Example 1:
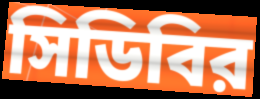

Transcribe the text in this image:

সিডিবির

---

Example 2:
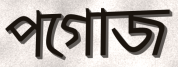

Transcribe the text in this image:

পগোজ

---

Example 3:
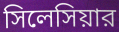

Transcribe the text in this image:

সিলেসিয়ার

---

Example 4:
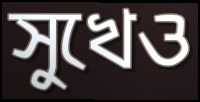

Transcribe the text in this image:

সুখেও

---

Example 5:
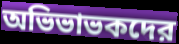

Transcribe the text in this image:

অভিভাভকদের